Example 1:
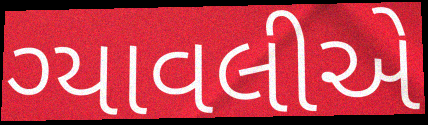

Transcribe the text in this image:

ગ્યાવલીએ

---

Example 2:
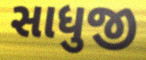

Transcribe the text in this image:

સાધુજી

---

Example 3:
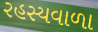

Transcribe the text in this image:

રહસ્યવાળા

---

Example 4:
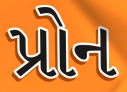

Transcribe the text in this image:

પ્રોન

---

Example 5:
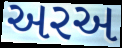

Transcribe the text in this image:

અરઅ